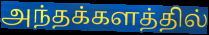
அந்தக்களத்தில்